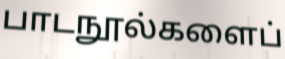
பாடநூல்களைப்